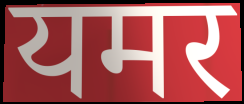
यमर